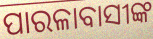
ପାରଳାବାସୀଙ୍କ